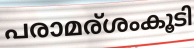
പരാമര്ശംകൂടി